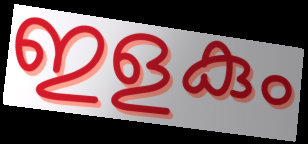
ഇളകും